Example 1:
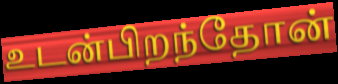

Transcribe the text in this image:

உடன்பிறந்தோன்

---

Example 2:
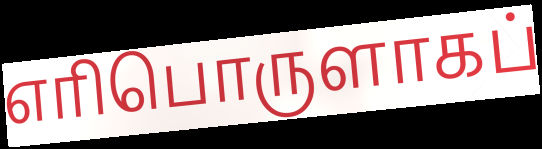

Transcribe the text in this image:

எரிபொருளாகப்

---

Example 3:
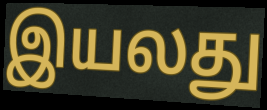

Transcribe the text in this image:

இயலது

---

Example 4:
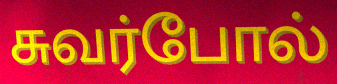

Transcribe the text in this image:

சுவர்போல்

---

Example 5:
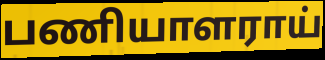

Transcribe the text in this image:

பணியாளராய்